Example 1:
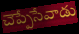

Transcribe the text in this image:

చెప్పేసేవాడు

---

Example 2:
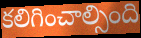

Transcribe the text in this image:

కలిగించాల్సింది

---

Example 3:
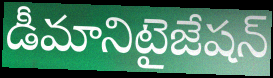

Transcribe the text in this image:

డీమానిటైజేషన్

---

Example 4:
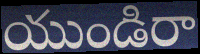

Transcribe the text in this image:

యుండిరా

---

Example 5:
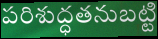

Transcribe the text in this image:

పరిశుద్ధతనుబట్టి